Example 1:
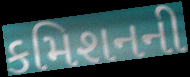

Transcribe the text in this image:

કમિશનની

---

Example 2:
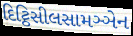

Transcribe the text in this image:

દિટ્ઠિસીલસામઞ્ઞેન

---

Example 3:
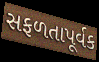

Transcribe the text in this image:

સફળતાપૂર્વક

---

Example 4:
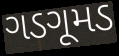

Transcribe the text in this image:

ગડગૂમડ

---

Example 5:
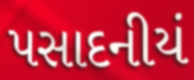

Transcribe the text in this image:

પસાદનીયં